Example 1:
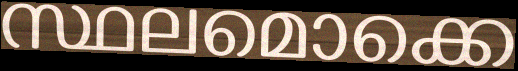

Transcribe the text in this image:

സ്ഥലമൊക്കെ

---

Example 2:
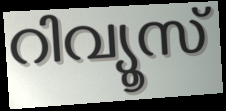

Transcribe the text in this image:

റിവ്യൂസ്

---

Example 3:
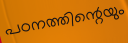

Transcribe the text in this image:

പഠനത്തിന്റെയും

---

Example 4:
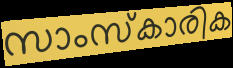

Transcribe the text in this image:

സാംസ്കാരിക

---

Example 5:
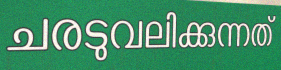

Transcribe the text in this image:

ചരടുവലിക്കുന്നത്